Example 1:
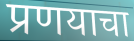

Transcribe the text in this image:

प्रणयाचा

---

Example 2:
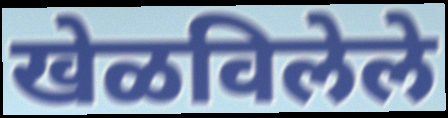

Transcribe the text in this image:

खेळविलेले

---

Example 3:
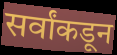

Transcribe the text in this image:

सर्वांकडून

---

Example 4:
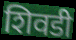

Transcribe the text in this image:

शिवडी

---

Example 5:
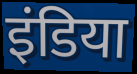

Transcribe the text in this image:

इंडिया